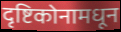
दृष्टिकोनामधून